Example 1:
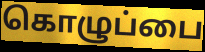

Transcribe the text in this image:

கொழுப்பை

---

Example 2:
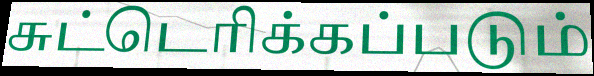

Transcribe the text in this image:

சுட்டெரிக்கப்படும்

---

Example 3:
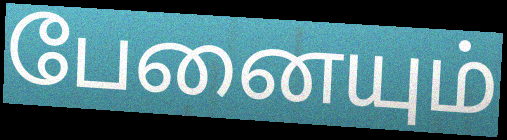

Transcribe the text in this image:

பேனையும்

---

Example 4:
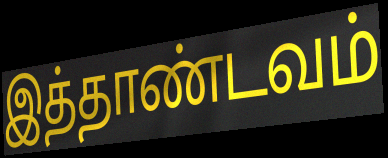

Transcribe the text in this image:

இத்தாண்டவம்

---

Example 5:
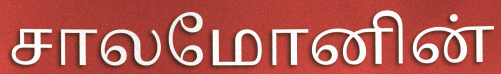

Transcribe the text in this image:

சாலமோனின்